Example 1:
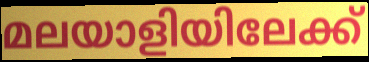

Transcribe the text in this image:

മലയാളിയിലേക്ക്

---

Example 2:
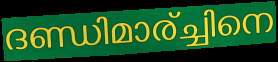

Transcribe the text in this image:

ദണ്ഡിമാര്ച്ചിനെ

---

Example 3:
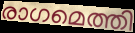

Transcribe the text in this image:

രാഗമെത്തി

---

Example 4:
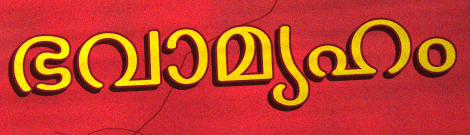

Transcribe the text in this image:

ഭവാമ്യഹം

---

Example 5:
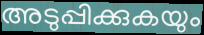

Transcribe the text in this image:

അടുപ്പിക്കുകയും